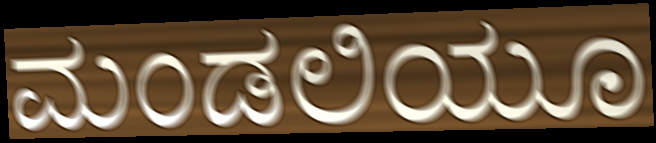
ಮಂಡಲಿಯೂ